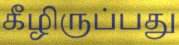
கீழிருப்பது